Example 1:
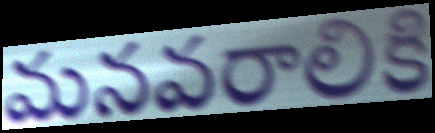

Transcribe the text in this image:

మనవరాలికి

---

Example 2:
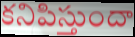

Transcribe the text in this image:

కనిపిస్తుందా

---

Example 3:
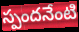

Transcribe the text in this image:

స్పందనేంటి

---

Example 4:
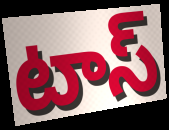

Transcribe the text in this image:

టాస్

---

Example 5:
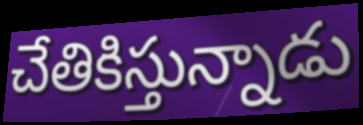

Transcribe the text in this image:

చేతికిస్తున్నాడు